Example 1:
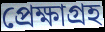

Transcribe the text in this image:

প্রেক্ষাগ্রহ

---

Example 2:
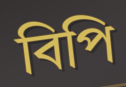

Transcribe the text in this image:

বিপি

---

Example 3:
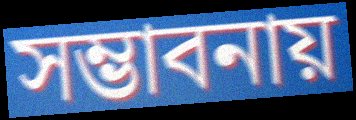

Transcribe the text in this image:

সম্ভাবনায়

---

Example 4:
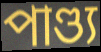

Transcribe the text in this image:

পাণ্ড্য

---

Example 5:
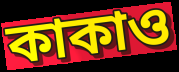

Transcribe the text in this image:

কাকাও